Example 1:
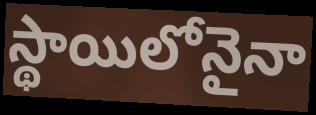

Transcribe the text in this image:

స్థాయిలోనైనా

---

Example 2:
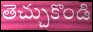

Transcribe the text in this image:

తెచ్చుకొండి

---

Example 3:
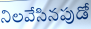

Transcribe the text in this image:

నిలవేసినపుడో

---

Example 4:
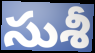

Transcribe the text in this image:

సుశీ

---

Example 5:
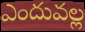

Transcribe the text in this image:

ఎందువల్ల